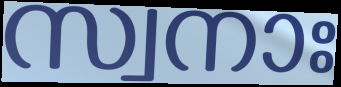
സ്വനാഃ